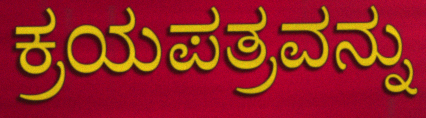
ಕ್ರಯಪತ್ರವನ್ನು